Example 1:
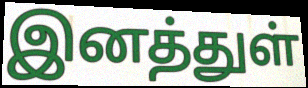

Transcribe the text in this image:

இனத்துள்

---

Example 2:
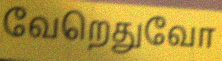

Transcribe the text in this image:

வேறெதுவோ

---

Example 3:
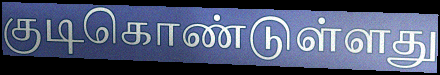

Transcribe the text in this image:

குடிகொண்டுள்ளது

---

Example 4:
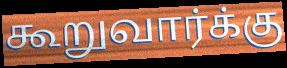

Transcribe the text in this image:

கூறுவார்க்கு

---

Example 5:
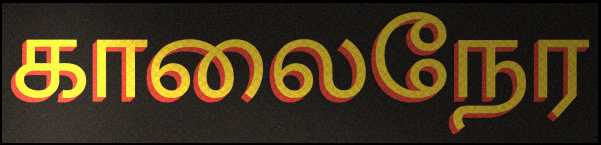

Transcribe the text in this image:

காலைநேர